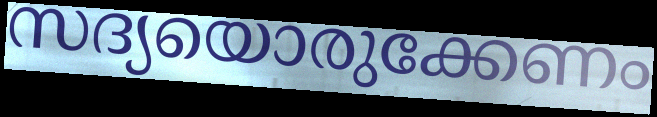
സദ്യയൊരുക്കേണം